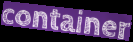
container